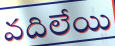
వదిలేయి